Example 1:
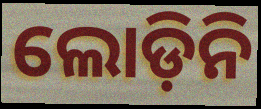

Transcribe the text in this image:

ଲୋଡ଼ିନି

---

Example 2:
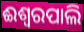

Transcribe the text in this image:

ଈଶ୍ୱରପାଲି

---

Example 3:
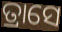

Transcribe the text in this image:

ତ୍ରାସେ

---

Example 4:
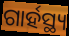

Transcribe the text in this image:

ଗାର୍ହସ୍ଥ୍ୟ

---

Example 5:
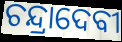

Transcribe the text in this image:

ଚନ୍ଦ୍ରାଦେବୀ